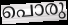
പൊരു